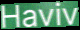
Haviv